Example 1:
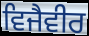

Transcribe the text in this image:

ਵਿਜੈਵੀਰ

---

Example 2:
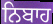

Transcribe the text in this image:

ਨਿਬਾਹ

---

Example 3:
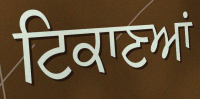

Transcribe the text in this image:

ਟਿਕਾਣਆਂ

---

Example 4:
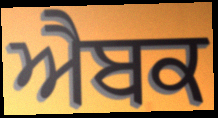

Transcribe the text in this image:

ਐਬਕ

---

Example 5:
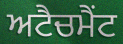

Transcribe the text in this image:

ਅਟੈਚਮੈਂਟ